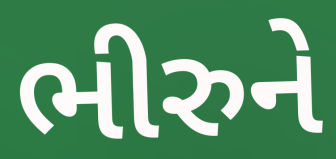
ભીરુને